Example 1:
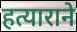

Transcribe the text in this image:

हत्याराने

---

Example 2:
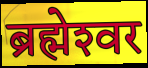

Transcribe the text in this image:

ब्रह्मेश्वर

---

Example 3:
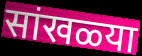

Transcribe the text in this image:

सांखळ्या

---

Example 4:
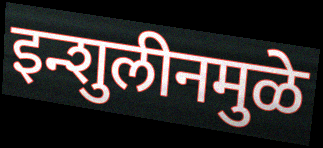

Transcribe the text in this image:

इन्शुलीनमुळे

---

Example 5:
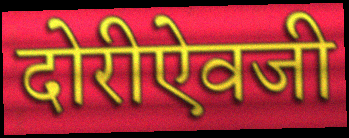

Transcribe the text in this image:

दोरीऐवजी